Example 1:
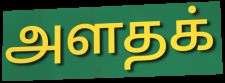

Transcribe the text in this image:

அளதக்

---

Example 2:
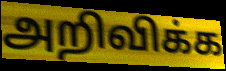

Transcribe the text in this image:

அறிவிக்க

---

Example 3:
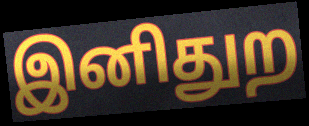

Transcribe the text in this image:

இனிதுற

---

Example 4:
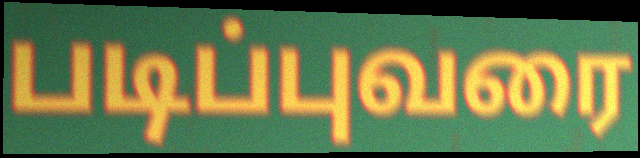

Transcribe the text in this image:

படிப்புவரை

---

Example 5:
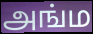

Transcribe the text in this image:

அங்ம